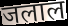
जलाल